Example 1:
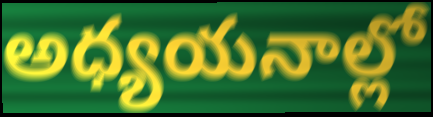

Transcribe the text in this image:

అధ్యయనాల్లో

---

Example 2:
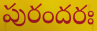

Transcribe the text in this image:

పురందరః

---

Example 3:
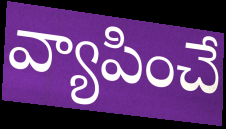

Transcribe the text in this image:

వ్యాపించే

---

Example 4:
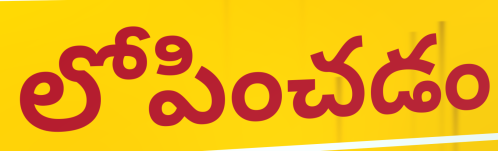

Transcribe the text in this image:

లోపించడం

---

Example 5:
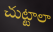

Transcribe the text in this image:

చుట్టాలా